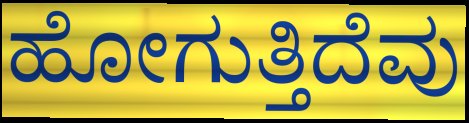
ಹೋಗುತ್ತಿದೆವು